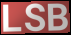
LSB